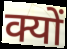
क्यों